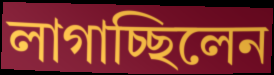
লাগাচ্ছিলেন